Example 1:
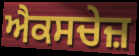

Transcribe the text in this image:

ਐਕਸਚੇਜ਼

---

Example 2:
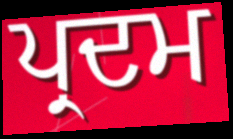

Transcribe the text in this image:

ਪ੍ਰਦਮ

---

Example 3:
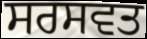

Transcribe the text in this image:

ਸਰਸਵਤ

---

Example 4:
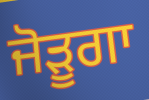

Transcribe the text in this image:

ਜੋੜੂਗਾ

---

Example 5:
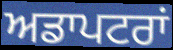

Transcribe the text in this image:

ਅਡਾਪਟਰਾਂ